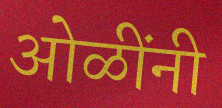
ओळींनी